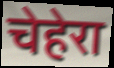
चेहेरा